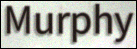
Murphy